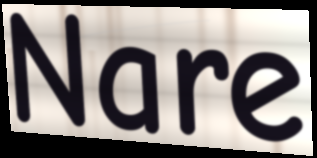
Nare